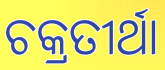
ଚକ୍ରତୀର୍ଥା